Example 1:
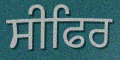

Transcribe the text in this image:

ਸੀਫਿਰ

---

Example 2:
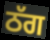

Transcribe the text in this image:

ਠੱਗ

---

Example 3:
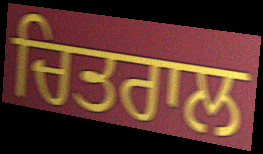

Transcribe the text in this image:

ਚਿਤਰਾਲ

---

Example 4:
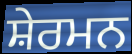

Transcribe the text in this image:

ਸ਼ੇਰਮਨ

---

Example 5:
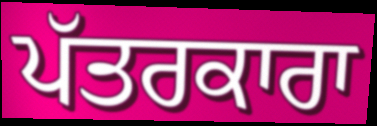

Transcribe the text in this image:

ਪੱਤਰਕਾਰਾ